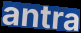
antra